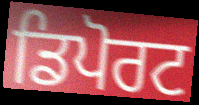
ਡਿਪੋਰਟ